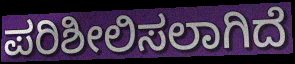
ಪರಿಶೀಲಿಸಲಾಗಿದೆ